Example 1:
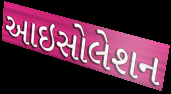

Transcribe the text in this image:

આઇસોલેશન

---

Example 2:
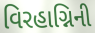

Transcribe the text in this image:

વિરહાગ્નિની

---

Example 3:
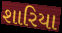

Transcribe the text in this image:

શારિયા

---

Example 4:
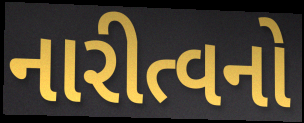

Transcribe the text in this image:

નારીત્વનો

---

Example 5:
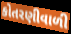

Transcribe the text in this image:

કોતરણીવાળી